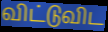
விட்டுவிட